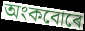
অংকবোৰে